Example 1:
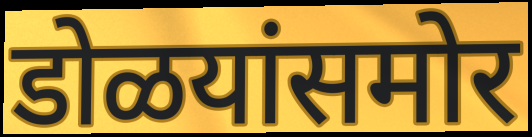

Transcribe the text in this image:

डोळयांसमोर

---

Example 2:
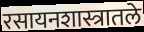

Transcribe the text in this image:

रसायनशास्त्रातले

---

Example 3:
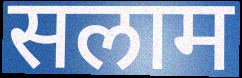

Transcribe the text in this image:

सलाम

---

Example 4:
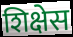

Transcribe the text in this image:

शिक्षेस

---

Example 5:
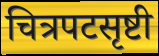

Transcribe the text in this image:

चित्रपटसृष्टी